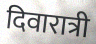
दिवारात्री